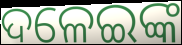
ଦଳେଇଙ୍କ